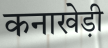
कनाखेड़ी